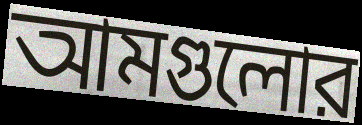
আমগুলোর